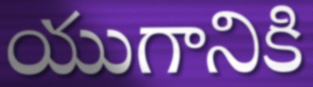
యుగానికి